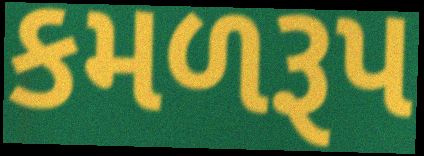
કમળરૂપ